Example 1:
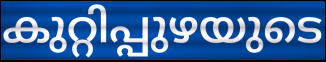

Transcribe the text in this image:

കുറ്റിപ്പുഴയുടെ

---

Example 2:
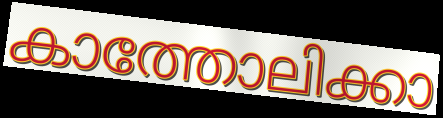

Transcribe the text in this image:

കാത്തോലിക്കാ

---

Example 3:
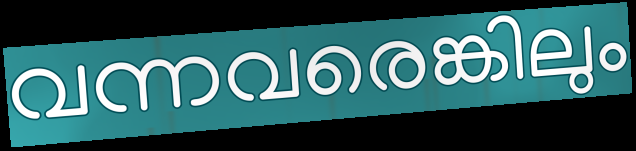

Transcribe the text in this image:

വന്നവരെങ്കിലും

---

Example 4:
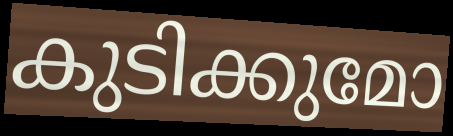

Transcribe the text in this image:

കുടിക്കുമോ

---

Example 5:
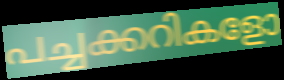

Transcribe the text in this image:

പച്ചക്കറികളോ